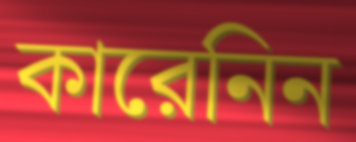
কারেনিন